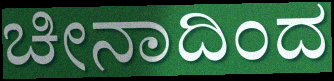
ಚೀನಾದಿಂದ